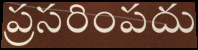
ప్రసరింపదు